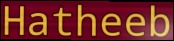
Hatheeb